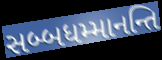
સબ્બધમ્માનન્તિ